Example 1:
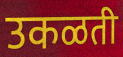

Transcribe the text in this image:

उकळती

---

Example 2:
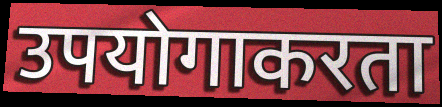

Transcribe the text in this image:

उपयोगाकरता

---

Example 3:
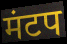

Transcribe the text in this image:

मंटप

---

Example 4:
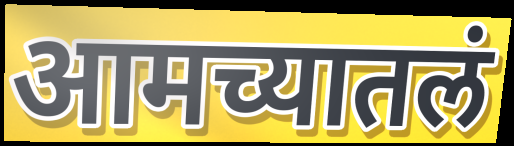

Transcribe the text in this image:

आमच्यातलं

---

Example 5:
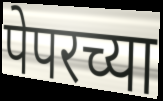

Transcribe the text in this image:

पेपरच्या